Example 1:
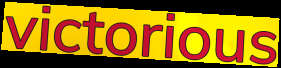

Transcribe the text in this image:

victorious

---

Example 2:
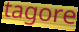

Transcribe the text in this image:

tagore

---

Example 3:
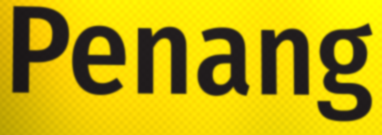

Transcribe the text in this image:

Penang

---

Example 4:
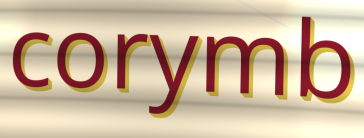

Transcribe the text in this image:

corymb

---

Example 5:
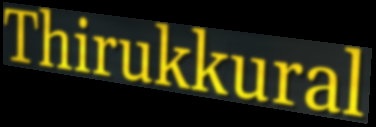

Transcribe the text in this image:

Thirukkural